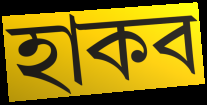
হাকব